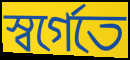
স্বর্গেতে